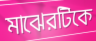
মাঝেরটিকে